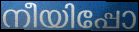
നീയിപ്പോ